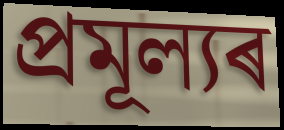
প্ৰমূল্যৰ